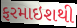
ફરમાઇશથી